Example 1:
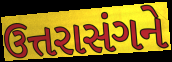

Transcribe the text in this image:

ઉત્તરાસંગને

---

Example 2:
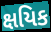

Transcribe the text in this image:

ક્ષયિક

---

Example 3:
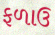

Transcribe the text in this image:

ફળાઉ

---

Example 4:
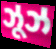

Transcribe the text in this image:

ઝૂઝ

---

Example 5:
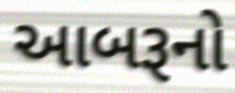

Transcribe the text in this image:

આબરૂનો